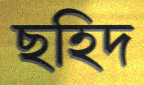
ছহিদ